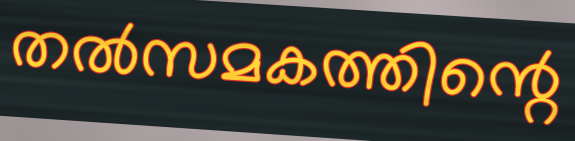
തൽസമകത്തിന്റെ